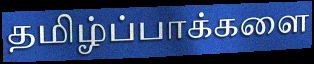
தமிழ்ப்பாக்களை